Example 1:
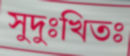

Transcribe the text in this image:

সুদুঃখিতঃ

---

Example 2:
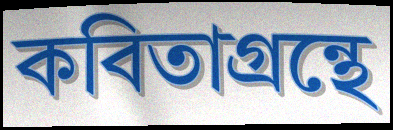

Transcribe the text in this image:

কবিতাগ্রন্থে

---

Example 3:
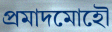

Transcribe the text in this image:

প্রমাদমোহৌ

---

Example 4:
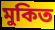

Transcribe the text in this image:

মুকিত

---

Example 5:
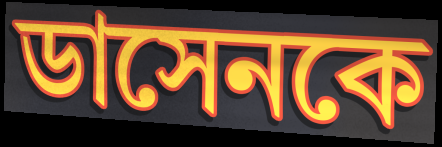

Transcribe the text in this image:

ডাসেনকে